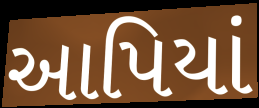
આપિયાં